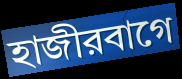
হাজীরবাগে